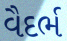
વૈદર્ભ